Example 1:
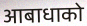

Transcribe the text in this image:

आबाधाको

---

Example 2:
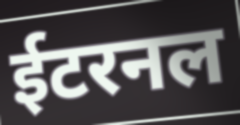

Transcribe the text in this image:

ईटरनल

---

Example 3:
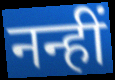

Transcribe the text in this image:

नन्हीं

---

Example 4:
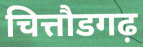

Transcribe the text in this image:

चित्तौडगढ़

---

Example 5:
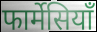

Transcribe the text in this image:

फार्मेसियाँ